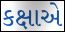
કક્ષાએ